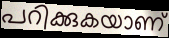
പറിക്കുകയാണ്